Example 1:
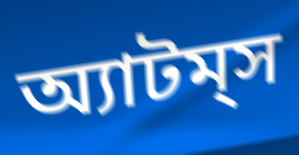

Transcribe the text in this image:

অ্যাটম্‌স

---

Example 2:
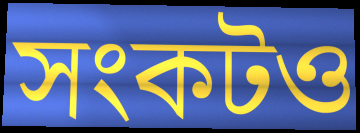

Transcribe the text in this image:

সংকটও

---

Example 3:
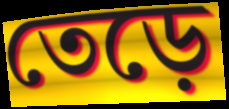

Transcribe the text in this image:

তেড়ে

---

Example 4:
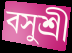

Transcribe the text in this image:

বসুশ্রী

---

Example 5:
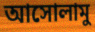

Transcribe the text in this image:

আসোলামু